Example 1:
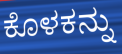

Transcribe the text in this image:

ಕೊಳಕನ್ನು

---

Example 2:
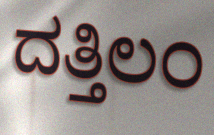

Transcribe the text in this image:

ದತ್ತಿಲಂ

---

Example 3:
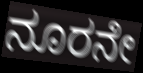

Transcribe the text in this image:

ನೂರನೇ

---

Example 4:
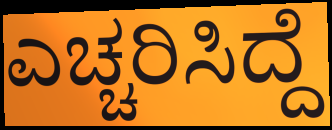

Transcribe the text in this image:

ಎಚ್ಚರಿಸಿದ್ದೆ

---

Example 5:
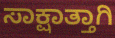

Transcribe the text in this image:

ಸಾಕ್ಷಾತ್ತಾಗಿ